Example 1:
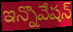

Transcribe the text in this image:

ఇన్నొవేషన్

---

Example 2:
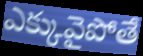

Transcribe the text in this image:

ఎక్కువైపోతే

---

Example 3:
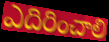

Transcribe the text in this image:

ఎదిరించాలి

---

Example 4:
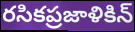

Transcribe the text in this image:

రసికప్రజాళికిన్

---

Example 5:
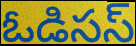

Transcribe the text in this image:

ఓడిసస్